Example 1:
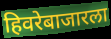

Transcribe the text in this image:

हिवरेबाजारला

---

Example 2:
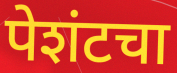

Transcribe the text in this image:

पेशंटचा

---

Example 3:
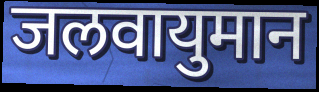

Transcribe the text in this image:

जलवायुमान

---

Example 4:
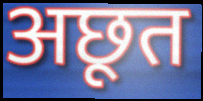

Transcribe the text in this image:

अछूत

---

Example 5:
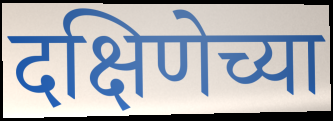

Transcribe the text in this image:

दक्षिणेच्या